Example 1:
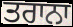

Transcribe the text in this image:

ਤਰਾਨਾ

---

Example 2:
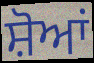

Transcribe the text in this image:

ਸ਼ੋਆਂ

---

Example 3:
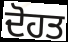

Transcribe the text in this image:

ਦੋਹਤ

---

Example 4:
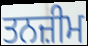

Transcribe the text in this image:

ਤਨਜ਼ੀਮ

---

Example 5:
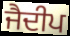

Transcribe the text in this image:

ਜੈਦੀਪ